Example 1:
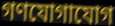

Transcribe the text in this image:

গণযোগাযোগ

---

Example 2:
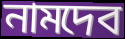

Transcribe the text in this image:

নামদেব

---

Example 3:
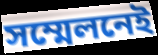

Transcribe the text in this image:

সম্মেলনেই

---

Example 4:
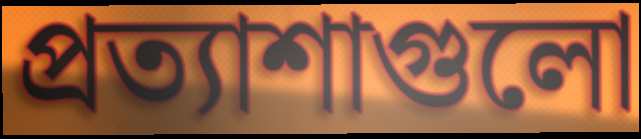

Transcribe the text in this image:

প্রত্যাশাগুলো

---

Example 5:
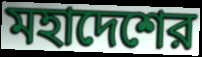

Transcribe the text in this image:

মহাদেশের